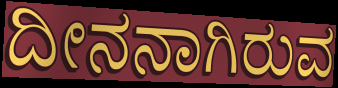
ದೀನನಾಗಿರುವ